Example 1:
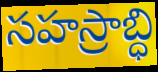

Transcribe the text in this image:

సహస్రాబ్ధి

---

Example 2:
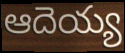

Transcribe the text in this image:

ఆదెయ్య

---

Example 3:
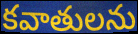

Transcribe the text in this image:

కవాతులను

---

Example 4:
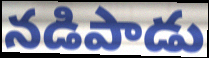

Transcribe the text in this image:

నడిపాడు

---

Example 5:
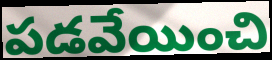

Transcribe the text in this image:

పడవేయించి